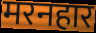
मरनहार